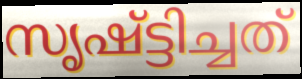
സൃഷ്ട്ടിച്ചത്